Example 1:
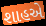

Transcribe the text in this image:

શાહએ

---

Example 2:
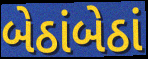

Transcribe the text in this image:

બેઠાંબેઠાં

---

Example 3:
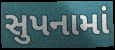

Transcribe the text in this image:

સુપનામાં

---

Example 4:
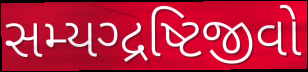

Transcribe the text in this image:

સમ્યગ્દ્રષ્ટિજીવો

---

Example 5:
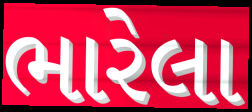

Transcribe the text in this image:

ભારેલા